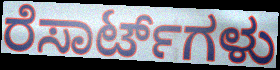
ರೆಸಾರ್ಟ್‌ಗಳು